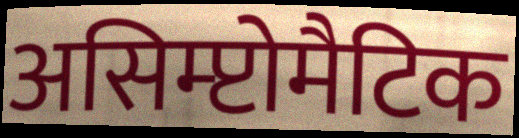
असिम्प्टोमैटिक